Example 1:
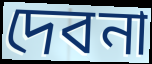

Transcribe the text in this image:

দেবনা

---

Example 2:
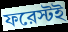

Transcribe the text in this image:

ফরেস্টই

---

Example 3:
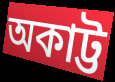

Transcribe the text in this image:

অকাট্ট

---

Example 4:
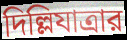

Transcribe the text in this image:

দিল্লিযাত্রার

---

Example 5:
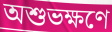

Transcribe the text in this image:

অশুভক্ষণে